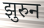
झुरुन